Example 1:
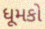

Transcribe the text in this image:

ધૂમકો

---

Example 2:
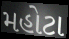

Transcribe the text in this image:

મહોટા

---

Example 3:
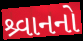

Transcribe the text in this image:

શ્ર્વાનનો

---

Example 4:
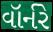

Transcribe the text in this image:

વૉર્નરે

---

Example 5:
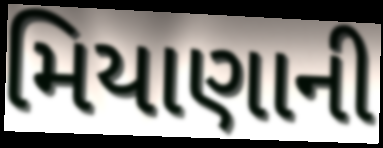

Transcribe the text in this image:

મિયાણાની